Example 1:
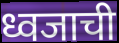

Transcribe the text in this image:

ध्वजाची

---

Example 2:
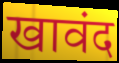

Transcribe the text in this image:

खावंद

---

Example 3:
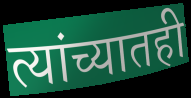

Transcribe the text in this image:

त्यांच्यातही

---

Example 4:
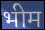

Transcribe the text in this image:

भीम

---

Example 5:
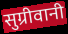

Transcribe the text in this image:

सुग्रीवानी